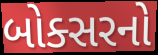
બોક્સરનો